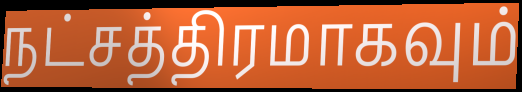
நட்சத்திரமாகவும்